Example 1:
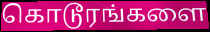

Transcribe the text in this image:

கொடூரங்களை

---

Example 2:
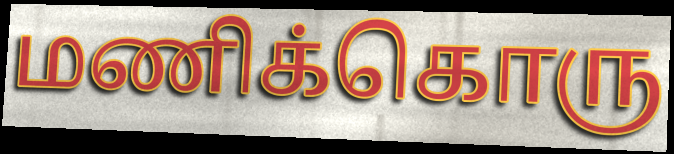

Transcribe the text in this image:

மணிக்கொரு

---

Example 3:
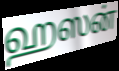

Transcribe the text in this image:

ஹஸன்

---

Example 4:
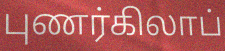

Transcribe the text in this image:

புணர்கிலாப்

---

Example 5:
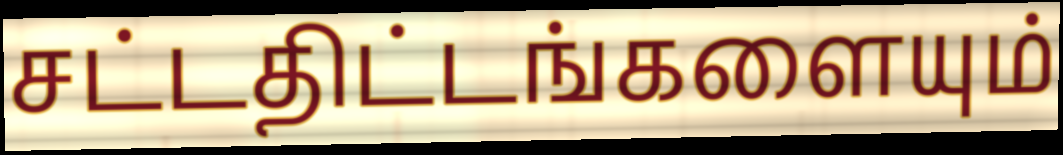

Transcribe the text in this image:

சட்டதிட்டங்களையும்